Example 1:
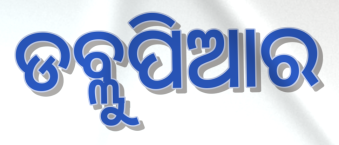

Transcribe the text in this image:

ଡବ୍ଲୁପିଆର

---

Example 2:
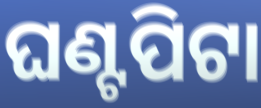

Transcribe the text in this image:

ଘଣ୍ଟପିଟା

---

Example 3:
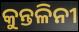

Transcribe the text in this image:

କୁନ୍ତଳିନୀ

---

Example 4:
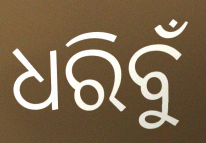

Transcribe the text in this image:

ଧରିବୁଁ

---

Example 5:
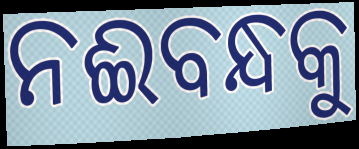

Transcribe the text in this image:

ନଈବନ୍ଧକୁ